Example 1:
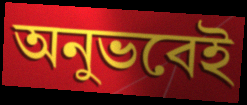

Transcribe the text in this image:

অনুভবেই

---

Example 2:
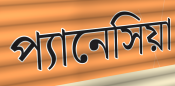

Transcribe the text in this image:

প্যানেসিয়া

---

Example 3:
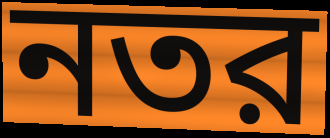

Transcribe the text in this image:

নতর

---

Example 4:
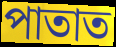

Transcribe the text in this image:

পাতাত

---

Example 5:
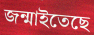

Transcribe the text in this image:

জন্মাইতেছে